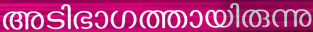
അടിഭാഗത്തായിരുന്നു